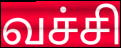
வச்சி